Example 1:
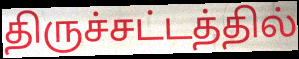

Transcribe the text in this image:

திருச்சட்டத்தில்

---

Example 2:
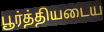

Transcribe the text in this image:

பூர்த்தியடைய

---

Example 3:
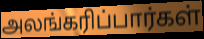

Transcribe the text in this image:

அலங்கரிப்பார்கள்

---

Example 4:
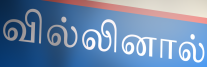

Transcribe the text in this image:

வில்லினால்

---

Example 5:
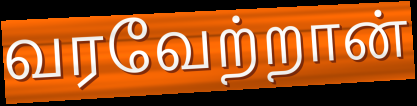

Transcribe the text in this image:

வரவேற்றான்